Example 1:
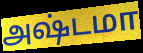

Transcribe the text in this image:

அஷ்டமா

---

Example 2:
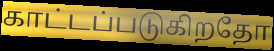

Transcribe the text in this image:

காட்டப்படுகிறதோ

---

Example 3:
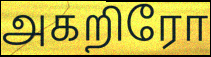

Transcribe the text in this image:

அகறிரோ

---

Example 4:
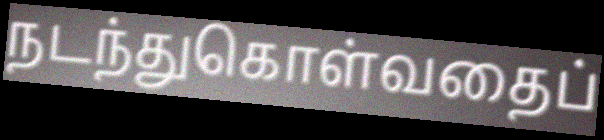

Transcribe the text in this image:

நடந்துகொள்வதைப்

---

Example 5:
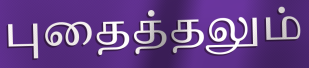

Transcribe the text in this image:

புதைத்தலும்